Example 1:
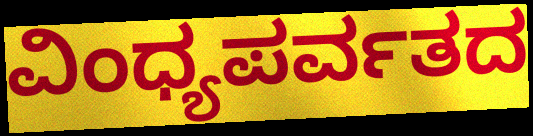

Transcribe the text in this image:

ವಿಂಧ್ಯಪರ್ವತದ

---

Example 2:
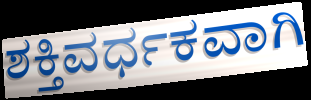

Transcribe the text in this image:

ಶಕ್ತಿವರ್ಧಕವಾಗಿ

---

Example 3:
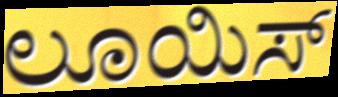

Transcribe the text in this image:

ಲೂಯಿಸ್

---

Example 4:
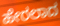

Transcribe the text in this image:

ಹೇರಲಾದ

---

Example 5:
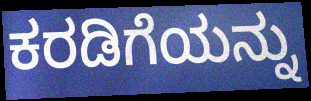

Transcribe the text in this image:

ಕರಡಿಗೆಯನ್ನು